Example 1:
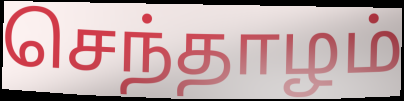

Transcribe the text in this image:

செந்தாழம்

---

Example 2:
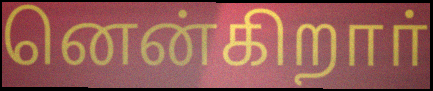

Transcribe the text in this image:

னென்கிறார்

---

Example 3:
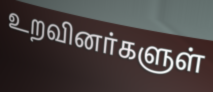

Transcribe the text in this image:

உறவினர்களுள்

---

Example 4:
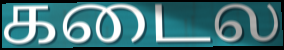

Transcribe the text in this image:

கடைல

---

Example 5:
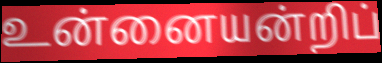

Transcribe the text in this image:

உன்னையன்றிப்